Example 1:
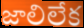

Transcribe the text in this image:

జాలిలేక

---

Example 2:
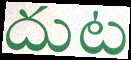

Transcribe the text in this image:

దుట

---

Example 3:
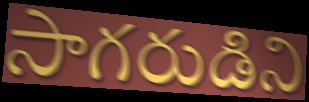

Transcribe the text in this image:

సాగరుడిని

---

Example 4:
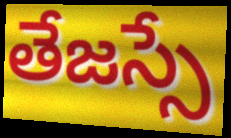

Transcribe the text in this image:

తేజస్సే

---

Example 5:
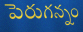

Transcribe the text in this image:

పెరుగన్నం